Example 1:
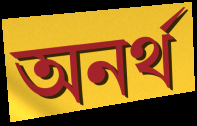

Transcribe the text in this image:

অনৰ্থ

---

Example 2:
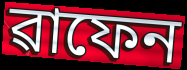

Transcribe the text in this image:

ৱাফেন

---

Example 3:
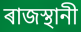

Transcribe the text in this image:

ৰাজস্থানী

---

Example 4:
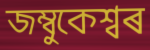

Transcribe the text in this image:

জম্বুকেশ্বৰ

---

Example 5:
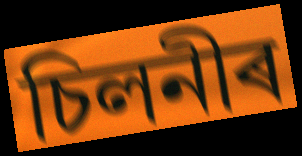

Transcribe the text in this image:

চিলনীৰ